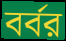
বর্বর